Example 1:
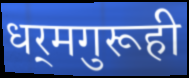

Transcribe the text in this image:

धर्मगुरूही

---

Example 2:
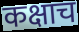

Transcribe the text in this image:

कक्षाच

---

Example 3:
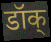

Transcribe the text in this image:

डॉक्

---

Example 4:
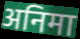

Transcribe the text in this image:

अनिमा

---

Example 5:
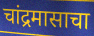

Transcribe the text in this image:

चांद्रमासाचा